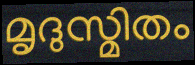
മൃദുസ്മിതം